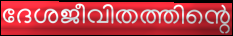
ദേശജീവിതത്തിന്റെ